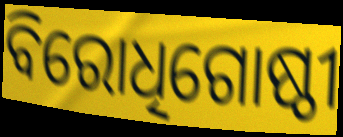
ବିରୋଧିଗୋଷ୍ଠୀ